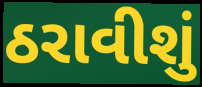
ઠરાવીશું